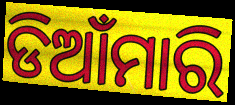
ଡିଆଁମାରି